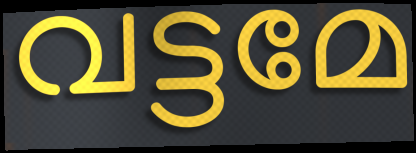
വട്ടമേ